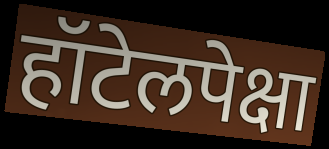
हॉटेलपेक्षा